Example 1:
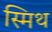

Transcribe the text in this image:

स्मिथ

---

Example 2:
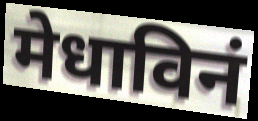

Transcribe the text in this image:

मेधाविनं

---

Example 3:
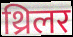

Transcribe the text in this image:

थ्रिलर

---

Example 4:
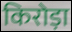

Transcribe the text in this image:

किरोड़ा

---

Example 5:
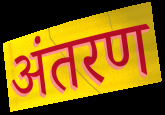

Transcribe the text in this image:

अंतरण